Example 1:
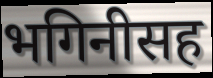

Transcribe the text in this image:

भगिनीसह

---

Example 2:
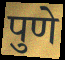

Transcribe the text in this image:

पुणे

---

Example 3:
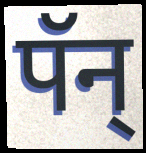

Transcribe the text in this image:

पॅन्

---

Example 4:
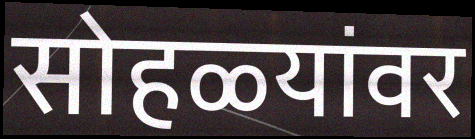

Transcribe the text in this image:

सोहळ्यांवर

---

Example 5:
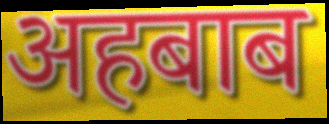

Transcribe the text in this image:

अहबाब